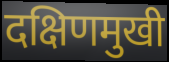
दक्षिणमुखी